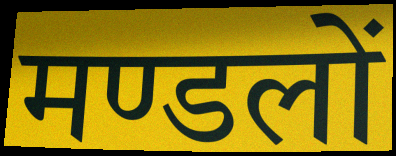
मण्डलों